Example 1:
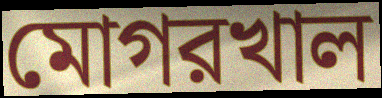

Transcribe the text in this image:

মোগরখাল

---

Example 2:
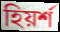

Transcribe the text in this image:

হিয়র্শ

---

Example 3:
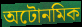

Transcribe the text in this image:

অটোনমিক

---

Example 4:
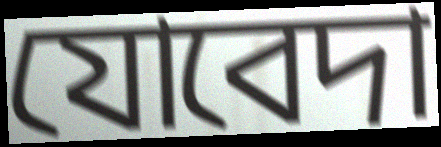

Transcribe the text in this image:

যোবেদা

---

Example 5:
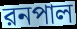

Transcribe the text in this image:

রনপাল